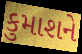
કુમાશને